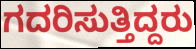
ಗದರಿಸುತ್ತಿದ್ದರು